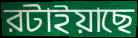
রটাইয়াছে